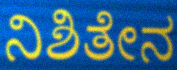
ನಿಶಿತೇನ